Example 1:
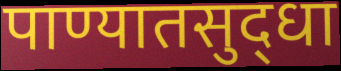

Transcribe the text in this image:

पाण्यातसुद्धा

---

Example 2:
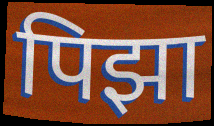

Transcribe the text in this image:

पिझा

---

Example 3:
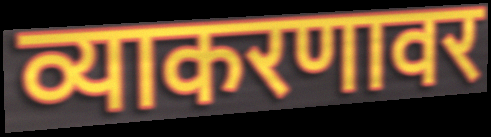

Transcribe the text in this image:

व्याकरणावर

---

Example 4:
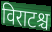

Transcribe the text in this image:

विराटश्च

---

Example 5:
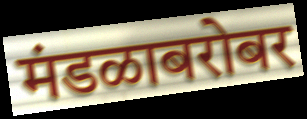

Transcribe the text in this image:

मंडळाबरोबर